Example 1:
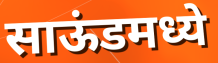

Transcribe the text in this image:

साऊंडमध्ये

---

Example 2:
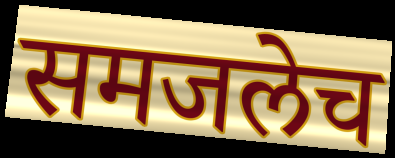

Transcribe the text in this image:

समजलेच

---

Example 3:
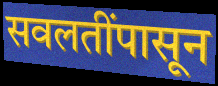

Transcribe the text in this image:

सवलतींपासून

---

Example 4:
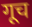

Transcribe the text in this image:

गूच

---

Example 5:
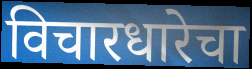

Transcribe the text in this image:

विचारधारेचा